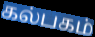
கல்பகம்